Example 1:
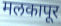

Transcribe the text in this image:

मलकापूर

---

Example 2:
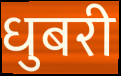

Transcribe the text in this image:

धुबरी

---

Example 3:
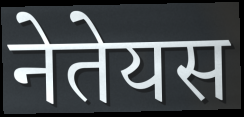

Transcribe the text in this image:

नेतेयस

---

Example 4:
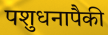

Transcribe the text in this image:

पशुधनापैकी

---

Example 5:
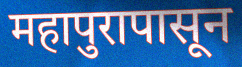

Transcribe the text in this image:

महापुरापासून